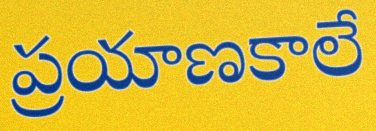
ప్రయాణకాలే